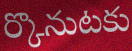
ర్కొనుటకు